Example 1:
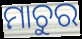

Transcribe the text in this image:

ମାଚୁର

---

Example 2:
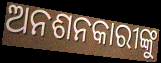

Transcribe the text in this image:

ଅନଶନକାରୀଙ୍କୁ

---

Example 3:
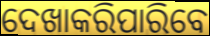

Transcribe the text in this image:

ଦେଖାକରିପାରିବେ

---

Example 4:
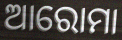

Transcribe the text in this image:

ଆରୋମା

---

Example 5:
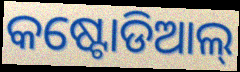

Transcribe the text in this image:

କଷ୍ଟୋଡିଆଲ୍